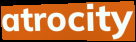
atrocity